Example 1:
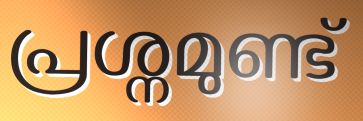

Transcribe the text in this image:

പ്രശ്നമുണ്ട്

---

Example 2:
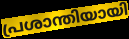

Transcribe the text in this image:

പ്രശാന്തിയായി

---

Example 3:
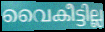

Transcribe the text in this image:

വൈകീട്ടില്ല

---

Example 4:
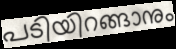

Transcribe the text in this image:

പടിയിറങ്ങാനും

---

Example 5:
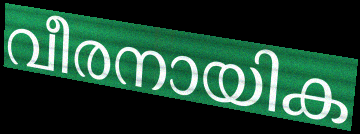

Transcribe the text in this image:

വീരനായിക